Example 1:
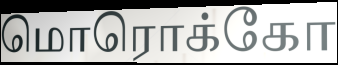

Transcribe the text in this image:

மொரொக்கோ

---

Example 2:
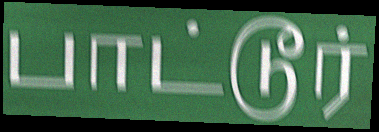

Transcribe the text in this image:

பாட்டூர்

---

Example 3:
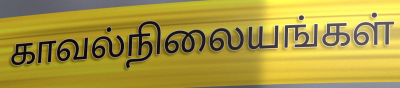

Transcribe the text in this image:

காவல்நிலையங்கள்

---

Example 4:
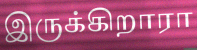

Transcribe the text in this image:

இருக்கிறாரா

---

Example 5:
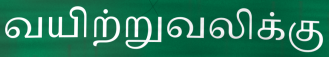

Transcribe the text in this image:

வயிற்றுவலிக்கு